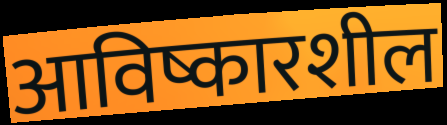
आविष्कारशील